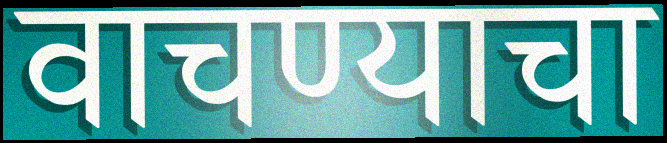
वाचण्याचा